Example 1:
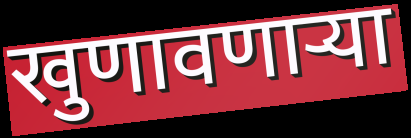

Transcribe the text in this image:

खुणावणाऱ्या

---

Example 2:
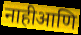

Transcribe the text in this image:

नाहीआणि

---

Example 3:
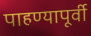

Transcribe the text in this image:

पाहण्यापूर्वी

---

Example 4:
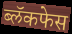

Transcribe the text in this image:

ब्लॅकफेस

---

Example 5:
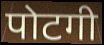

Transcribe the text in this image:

पोटगी